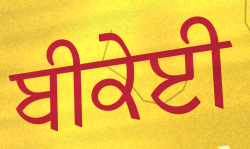
ਬੀਕੇਈ